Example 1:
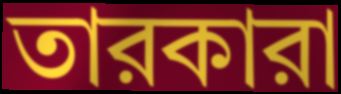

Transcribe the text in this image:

তারকারা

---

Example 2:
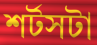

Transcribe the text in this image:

শর্টসটা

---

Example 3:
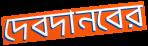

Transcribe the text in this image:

দেবদানবের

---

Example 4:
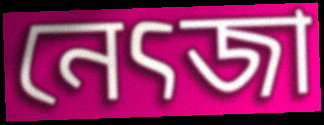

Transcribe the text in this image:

নেৎজা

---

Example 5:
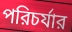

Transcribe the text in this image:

পরিচর্যার